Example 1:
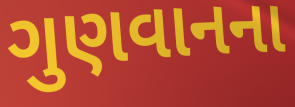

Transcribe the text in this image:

ગુણવાનના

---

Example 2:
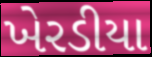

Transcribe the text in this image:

ખેરડીયા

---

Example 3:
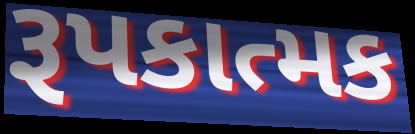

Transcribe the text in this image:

રૂપકાત્મક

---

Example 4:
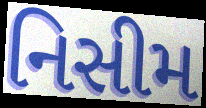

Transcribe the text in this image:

નિસીમ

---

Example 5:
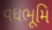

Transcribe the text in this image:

વધભૂમિ